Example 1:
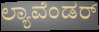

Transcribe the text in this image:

ಲ್ಯಾವೆಂಡರ್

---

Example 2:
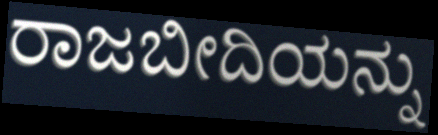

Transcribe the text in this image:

ರಾಜಬೀದಿಯನ್ನು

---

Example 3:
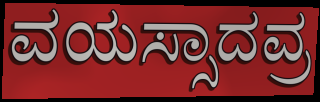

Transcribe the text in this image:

ವಯಸ್ಸಾದವ್ರ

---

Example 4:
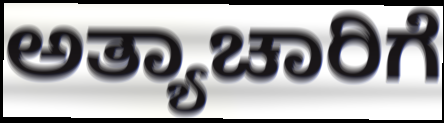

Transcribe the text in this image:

ಅತ್ಯಾಚಾರಿಗೆ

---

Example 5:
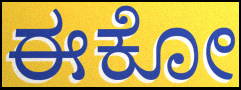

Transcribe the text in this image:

ಈಕೋ